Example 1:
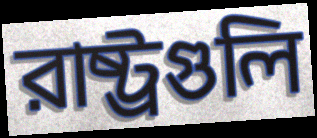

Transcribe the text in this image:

রাষ্ট্রগুলি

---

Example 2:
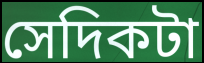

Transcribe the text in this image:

সেদিকটা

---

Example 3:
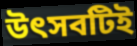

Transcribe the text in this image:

উৎসবটিই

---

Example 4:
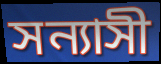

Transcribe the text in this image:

সন্যাসী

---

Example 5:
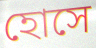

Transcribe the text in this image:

হোসে